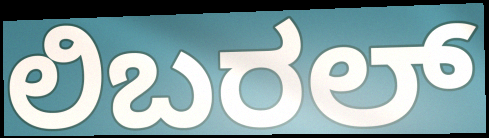
ಲಿಬರಲ್